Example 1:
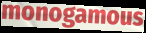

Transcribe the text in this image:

monogamous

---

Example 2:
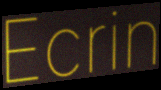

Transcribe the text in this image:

Ecrin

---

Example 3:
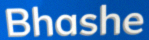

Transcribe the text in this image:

Bhashe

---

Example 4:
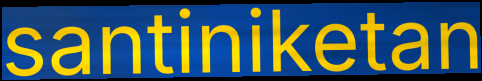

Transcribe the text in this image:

santiniketan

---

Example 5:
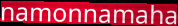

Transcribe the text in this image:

namonnamaha